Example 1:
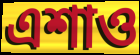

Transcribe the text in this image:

এশাও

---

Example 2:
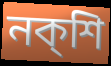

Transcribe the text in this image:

নক্‌শি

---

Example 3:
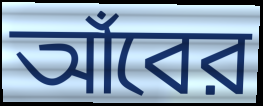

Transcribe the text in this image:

আঁবের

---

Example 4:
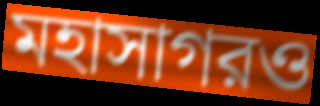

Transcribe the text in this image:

মহাসাগরও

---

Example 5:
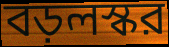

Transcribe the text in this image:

বড়লস্কর